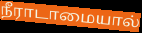
நீராடாமையால்